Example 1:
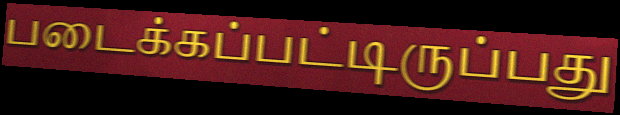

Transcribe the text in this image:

படைக்கப்பட்டிருப்பது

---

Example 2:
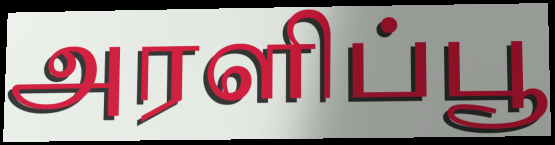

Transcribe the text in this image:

அரளிப்பூ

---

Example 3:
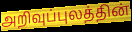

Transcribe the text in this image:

அறிவுப்புலத்தின்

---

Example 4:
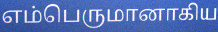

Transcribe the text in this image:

எம்பெருமானாகிய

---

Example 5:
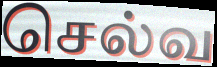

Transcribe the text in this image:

செல்வ